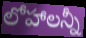
లోహాలన్నీ